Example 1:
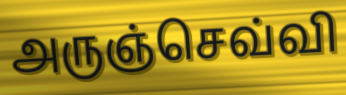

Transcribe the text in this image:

அருஞ்செவ்வி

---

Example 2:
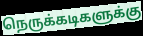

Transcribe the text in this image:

நெருக்கடிகளுக்கு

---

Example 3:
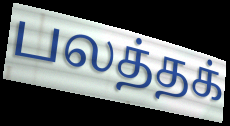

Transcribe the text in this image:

பலத்தக்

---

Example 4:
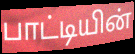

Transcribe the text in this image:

பாட்டியின்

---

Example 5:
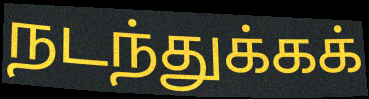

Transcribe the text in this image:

நடந்துக்கக்